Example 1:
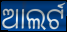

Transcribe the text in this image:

ଆଲର୍ଟ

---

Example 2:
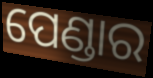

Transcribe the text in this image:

ପେଣ୍ଡାର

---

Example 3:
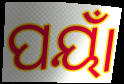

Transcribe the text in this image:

ପୟାଁ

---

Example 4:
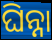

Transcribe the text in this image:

ଘିନ୍ନା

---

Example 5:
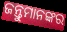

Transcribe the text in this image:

ଜନ୍ତୁମାନଙ୍କର